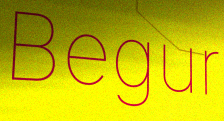
Begur